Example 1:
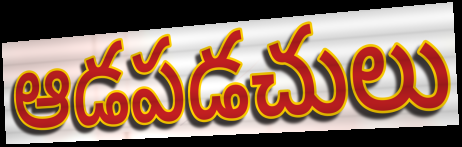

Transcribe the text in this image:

ఆడపడచులు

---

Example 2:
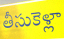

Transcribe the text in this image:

తీసుకెళ్లా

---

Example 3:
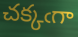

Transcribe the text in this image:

చక్కఁగా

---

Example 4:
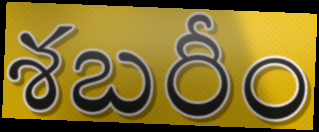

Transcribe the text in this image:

శబరీం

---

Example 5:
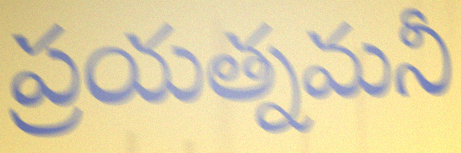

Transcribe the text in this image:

ప్రయత్నమనీ